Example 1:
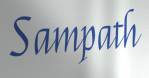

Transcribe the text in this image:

Sampath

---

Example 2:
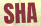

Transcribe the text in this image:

SHA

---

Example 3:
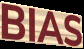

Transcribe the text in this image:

BIAS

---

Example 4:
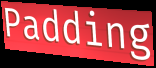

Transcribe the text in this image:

Padding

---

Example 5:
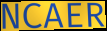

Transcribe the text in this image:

NCAER